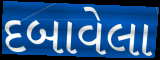
દબાવેલા